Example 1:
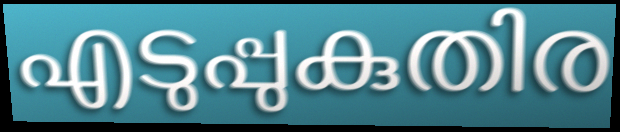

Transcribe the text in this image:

എടുപ്പുകുതിര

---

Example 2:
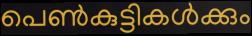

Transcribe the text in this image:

പെൺകുട്ടികൾക്കും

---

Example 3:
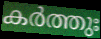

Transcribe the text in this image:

കർത്തുഃ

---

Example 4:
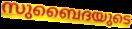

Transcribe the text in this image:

സുബൈദയുടെ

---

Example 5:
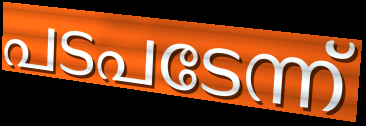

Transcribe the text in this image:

പടപടേന്ന്